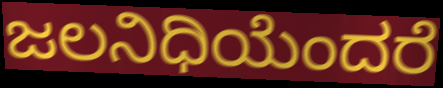
ಜಲನಿಧಿಯೆಂದರೆ